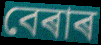
বেৰাৰ